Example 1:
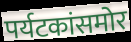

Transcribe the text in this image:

पर्यटकांसमोर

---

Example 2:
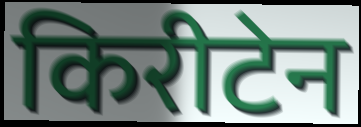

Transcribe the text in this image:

किरीटेन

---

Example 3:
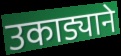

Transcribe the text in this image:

उकाड्याने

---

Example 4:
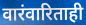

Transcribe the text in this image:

वारंवारिताही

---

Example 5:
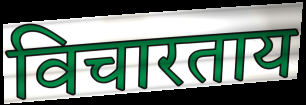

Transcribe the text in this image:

विचारताय